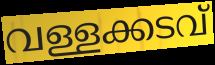
വള്ളക്കടവ്